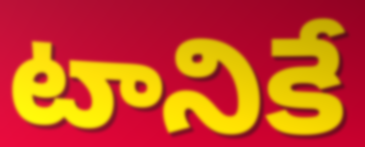
టానికే